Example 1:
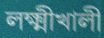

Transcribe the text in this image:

লক্ষ্মীখালী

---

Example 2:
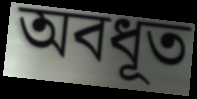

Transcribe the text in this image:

অবধূত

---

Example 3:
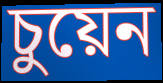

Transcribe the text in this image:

চুয়েন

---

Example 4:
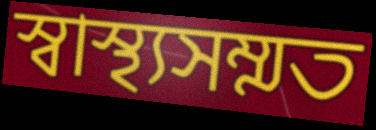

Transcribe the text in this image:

স্বাস্থ্যসম্মত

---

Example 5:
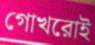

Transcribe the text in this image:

গোখরোই